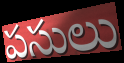
పసులు